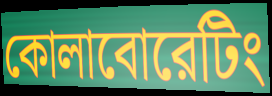
কোলাবোরেটিং